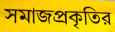
সমাজপ্রকৃতির